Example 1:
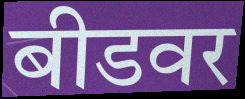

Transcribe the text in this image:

बीडवर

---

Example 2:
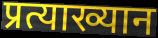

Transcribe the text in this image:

प्रत्याख्यान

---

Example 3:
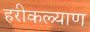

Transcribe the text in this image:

हरीकल्याण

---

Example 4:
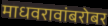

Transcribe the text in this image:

माधवरावांबरोबर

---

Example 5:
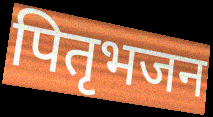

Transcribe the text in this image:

पितृभजन